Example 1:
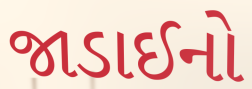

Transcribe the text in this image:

જાડાઈનો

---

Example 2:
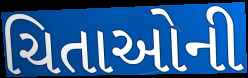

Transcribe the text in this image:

ચિતાઓની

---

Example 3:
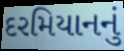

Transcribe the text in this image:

દરમિયાનનું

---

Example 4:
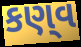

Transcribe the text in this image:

કણ્‌વ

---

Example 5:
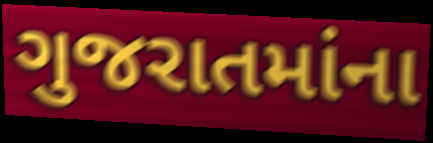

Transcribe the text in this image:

ગુજરાતમાંના